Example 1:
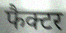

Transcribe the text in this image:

फैक्टर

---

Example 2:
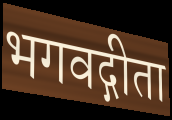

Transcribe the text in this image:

भगवद्गीता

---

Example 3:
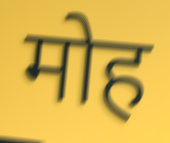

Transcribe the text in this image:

मोह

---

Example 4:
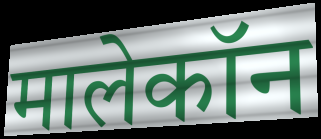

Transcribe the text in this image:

मालेकॉन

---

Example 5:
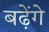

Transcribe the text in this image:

बढ़ेंगे